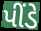
પીંડે